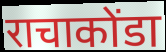
राचाकोंडा